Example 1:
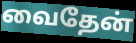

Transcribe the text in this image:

வைதேன்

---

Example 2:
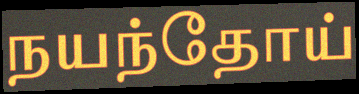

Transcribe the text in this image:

நயந்தோய்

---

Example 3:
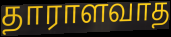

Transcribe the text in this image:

தாராளவாத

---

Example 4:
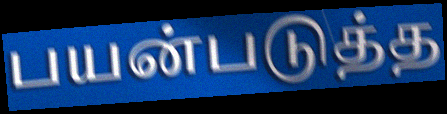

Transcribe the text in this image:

பயன்படுத்த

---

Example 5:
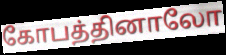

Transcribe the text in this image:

கோபத்தினாலோ